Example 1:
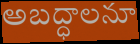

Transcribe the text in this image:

అబద్ధాలనూ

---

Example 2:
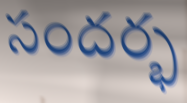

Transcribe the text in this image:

సందర్భ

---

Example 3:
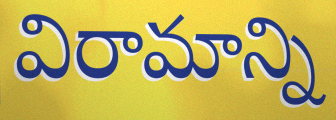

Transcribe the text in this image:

విరామాన్ని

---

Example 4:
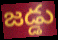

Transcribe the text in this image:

జడ్డు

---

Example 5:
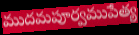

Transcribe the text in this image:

ముదమపూర్వముపేత్య